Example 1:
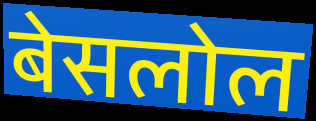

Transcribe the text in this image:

बेसलोल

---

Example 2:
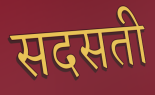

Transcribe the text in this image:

सदसती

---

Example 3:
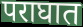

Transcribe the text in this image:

पराघात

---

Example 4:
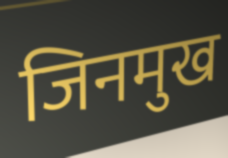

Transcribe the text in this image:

जिनमुख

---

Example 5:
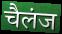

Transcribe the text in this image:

चैलंज